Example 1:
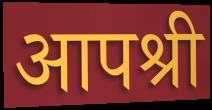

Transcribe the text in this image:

आपश्री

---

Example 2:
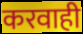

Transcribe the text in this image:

करवाही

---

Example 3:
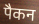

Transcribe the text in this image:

पैकन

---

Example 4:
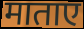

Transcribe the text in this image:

माताए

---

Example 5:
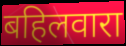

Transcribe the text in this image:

बहिलवारा